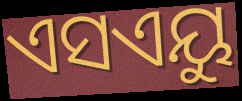
ଏସଏୟୁ